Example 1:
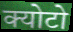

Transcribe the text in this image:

क्‍योटो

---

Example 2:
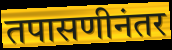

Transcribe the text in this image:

तपासणीनंतर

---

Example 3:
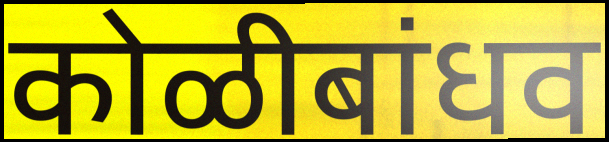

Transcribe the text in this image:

कोळीबांधव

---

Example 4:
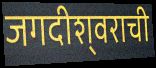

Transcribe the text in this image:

जगदीश्वराची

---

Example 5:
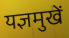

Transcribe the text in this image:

यज्ञमुखें